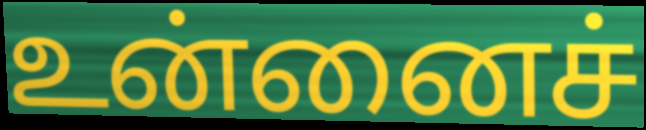
உன்னைச்